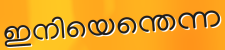
ഇനിയെന്തെന്ന